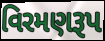
વિરમણરૂપ